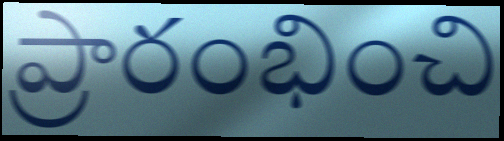
ప్రారంభించి